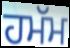
ਹਮੱਮ